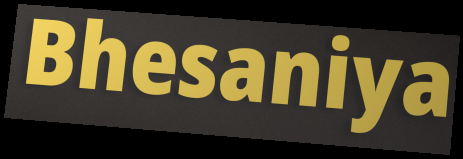
Bhesaniya